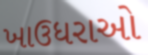
ખાઉધરાઓ